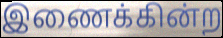
இணைக்கின்ற